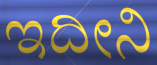
ಇದೀನಿ